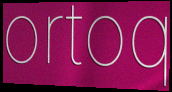
ortoq